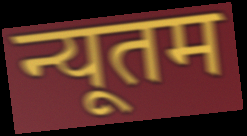
न्यूतम